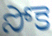
సోకె